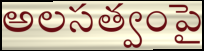
అలసత్వంపై